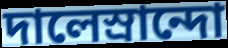
দালেস্রান্দো